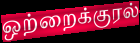
ஒற்றைக்குரல்